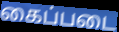
கைப்படை